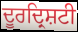
ਦੂਰਦ੍ਰਿਸ਼ਟੀ